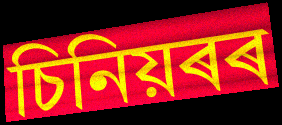
চিনিয়ৰৰ